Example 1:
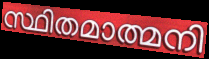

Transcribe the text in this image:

സ്ഥിതമാത്മനി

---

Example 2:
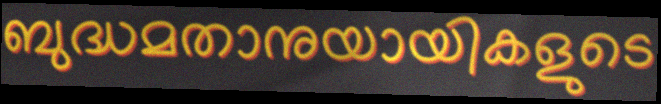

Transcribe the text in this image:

ബുദ്ധമതാനുയായികളുടെ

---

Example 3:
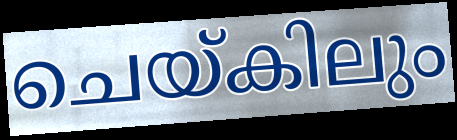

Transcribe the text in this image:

ചെയ്കിലും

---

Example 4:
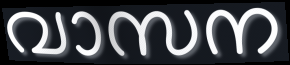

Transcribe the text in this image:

വാസന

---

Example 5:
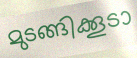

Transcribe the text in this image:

മുടങ്ങിക്കൂടാ